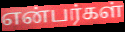
என்பர்கள்